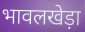
भावलखेड़ा